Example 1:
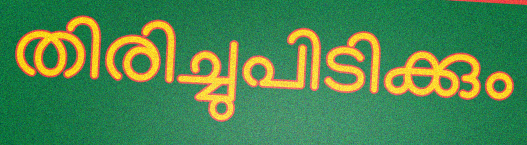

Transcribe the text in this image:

തിരിച്ചുപിടിക്കും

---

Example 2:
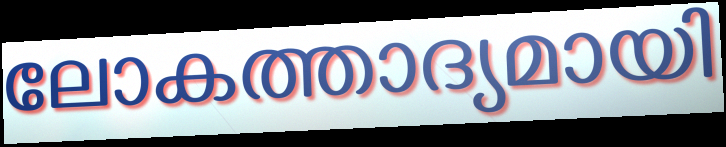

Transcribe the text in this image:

ലോകത്താദ്യമായി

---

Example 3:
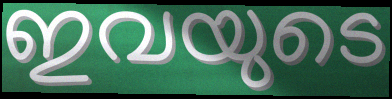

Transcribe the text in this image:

ഇവയുടെ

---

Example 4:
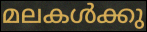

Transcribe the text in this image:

മലകൾക്കു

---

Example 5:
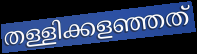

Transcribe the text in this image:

തള്ളിക്കളഞ്ഞത്